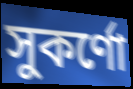
সুকর্ণো